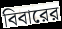
বিবারের